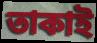
তাকাই